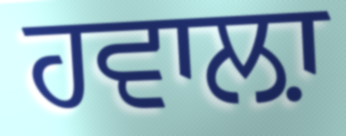
ਹਵਾਲ਼ਾ